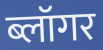
ब्लॉगर